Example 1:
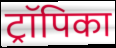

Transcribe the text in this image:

ट्रॉपिका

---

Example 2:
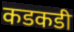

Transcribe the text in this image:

कडकडी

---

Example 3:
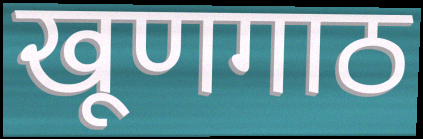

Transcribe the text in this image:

खूणगाठ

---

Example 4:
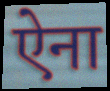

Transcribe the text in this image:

ऐना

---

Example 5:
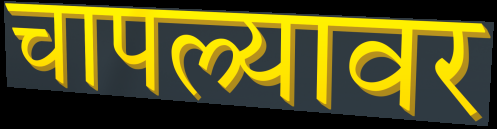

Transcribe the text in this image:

चापल्यावर